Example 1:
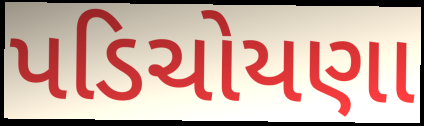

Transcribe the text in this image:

પડિચોયણા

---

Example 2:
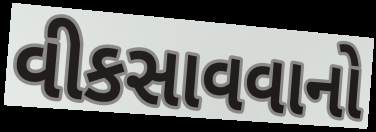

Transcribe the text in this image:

વીકસાવવાનો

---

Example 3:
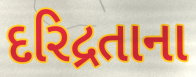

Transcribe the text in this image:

દરિદ્રતાના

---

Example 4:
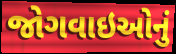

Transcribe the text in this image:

જોગવાઇઓનું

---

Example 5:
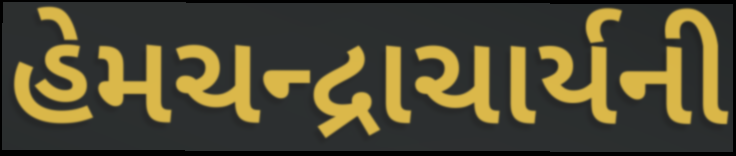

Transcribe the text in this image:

હેમચન્દ્રાચાર્યની